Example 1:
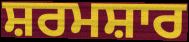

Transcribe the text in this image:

ਸ਼ਰਮਸ਼ਾਰ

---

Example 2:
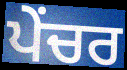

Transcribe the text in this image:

ਪੇਂਚਰ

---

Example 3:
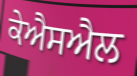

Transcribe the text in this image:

ਕੇਐਸਐਲ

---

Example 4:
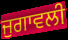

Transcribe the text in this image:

ਜੁਗਾਵਲੀ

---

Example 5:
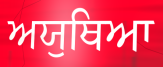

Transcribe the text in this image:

ਅਯੁਥਿਆ